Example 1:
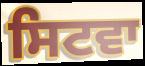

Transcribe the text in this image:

ਸਿਟਵਾ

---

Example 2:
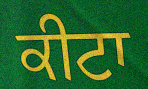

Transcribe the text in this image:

ਕੀਟਾ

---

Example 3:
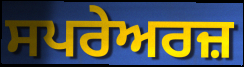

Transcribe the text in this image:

ਸਪਰੇਅਰਜ਼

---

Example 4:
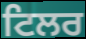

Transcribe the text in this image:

ਟਿਲਰ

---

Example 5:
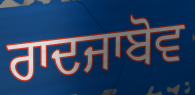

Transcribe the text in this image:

ਰਾਦਜਾਬੋਵ